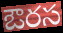
ఔరస